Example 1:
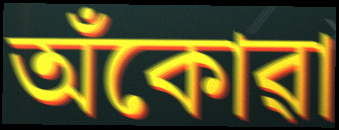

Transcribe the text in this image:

অঁকোৱা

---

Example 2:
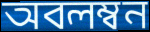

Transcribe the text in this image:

অবলম্বন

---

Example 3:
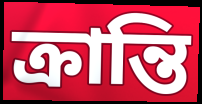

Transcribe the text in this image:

ক্ৰান্তি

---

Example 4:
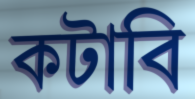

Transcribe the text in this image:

কটাবি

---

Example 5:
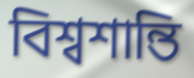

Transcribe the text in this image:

বিশ্বশান্তি